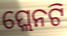
ପ୍ଲେନଟି